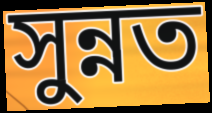
সুন্নত